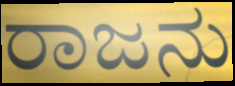
ರಾಜನು